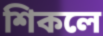
শিকলে